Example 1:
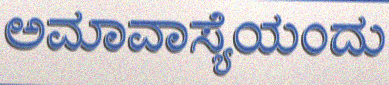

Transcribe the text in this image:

ಅಮಾವಾಸ್ಯೆಯಂದು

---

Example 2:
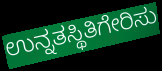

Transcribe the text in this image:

ಉನ್ನತಸ್ಥಿತಿಗೇರಿಸು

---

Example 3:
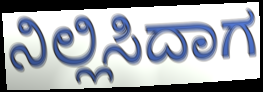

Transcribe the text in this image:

ನಿಲ್ಲಿಸಿದಾಗ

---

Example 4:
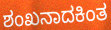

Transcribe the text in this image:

ಶಂಖನಾದಕಿಂತ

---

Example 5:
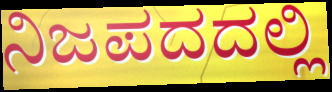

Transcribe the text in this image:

ನಿಜಪದದಲ್ಲಿ